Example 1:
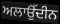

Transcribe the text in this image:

ਅਲਾਉੱਦੀਨ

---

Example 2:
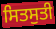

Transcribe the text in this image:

ਸਿਤਸੁਤੀ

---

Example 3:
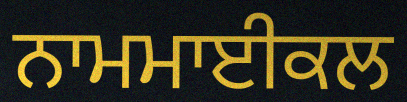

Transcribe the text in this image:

ਨਾਮਮਾਈਕਲ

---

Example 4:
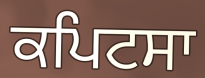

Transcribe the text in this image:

ਕਪਿਟਸਾ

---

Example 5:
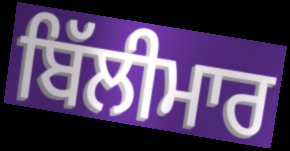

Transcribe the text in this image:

ਬਿੱਲੀਮਾਰ